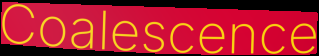
Coalescence